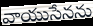
వాయుసేనను